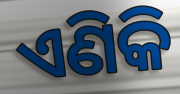
ଏଣିକି